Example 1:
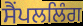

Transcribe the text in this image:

ਸੈਂਪਲਲਿੰਗ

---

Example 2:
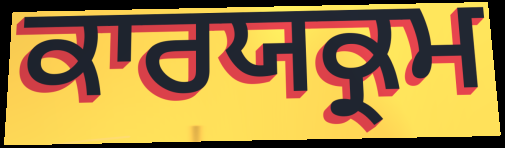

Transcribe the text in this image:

ਕਾਰਯਕ੍ਰਮ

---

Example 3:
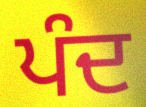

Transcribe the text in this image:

ਪੰਦ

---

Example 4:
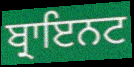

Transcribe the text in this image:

ਬ੍ਰਾਇਨਟ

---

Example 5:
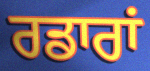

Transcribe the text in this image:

ਰਡਾਰਾਂ